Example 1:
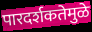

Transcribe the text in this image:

पारदर्शकतेमुळे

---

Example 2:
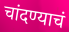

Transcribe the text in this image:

चांदण्याचं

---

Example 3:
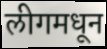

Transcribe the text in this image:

लीगमधून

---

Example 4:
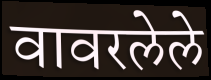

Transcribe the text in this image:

वावरलेले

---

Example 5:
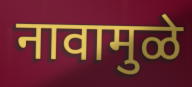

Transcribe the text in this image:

नावामुळे